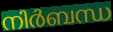
നിർബന്ധ